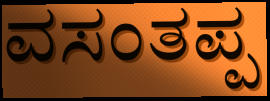
ವಸಂತಪ್ಪ